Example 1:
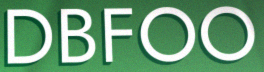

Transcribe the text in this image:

DBFOO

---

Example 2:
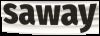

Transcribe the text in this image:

saway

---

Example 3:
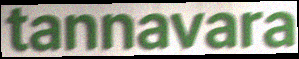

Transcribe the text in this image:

tannavara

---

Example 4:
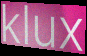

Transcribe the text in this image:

klux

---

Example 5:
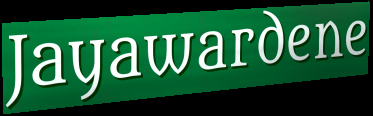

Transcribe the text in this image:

Jayawardene